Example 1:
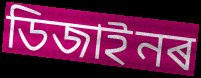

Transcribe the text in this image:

ডিজাইনৰ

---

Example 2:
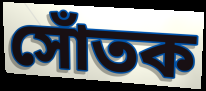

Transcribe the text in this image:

সোঁতক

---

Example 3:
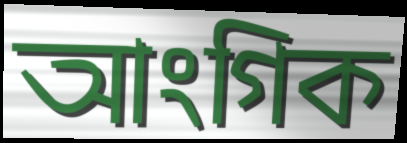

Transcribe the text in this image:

আংগিক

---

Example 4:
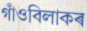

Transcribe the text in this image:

গাঁওবিলাকৰ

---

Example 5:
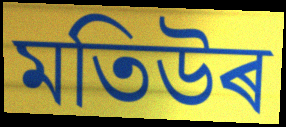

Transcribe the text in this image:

মতিউৰ